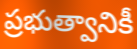
ప్రభుత్వానికీ